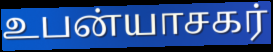
உபன்யாசகர்